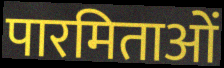
पारमिताओं